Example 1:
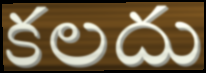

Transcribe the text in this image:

కలదు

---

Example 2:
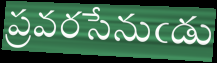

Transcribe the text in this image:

ప్రవరసేనుఁడు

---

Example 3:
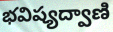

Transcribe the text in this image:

భవిష్యద్వాణి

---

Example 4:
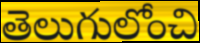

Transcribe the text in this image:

తెలుగులోంచి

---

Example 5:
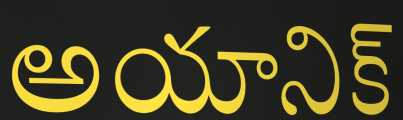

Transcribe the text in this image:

అయానిక్